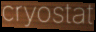
cryostat